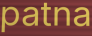
patna